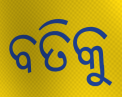
ବତିକୁ